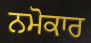
ਨਮੋਕਾਰ